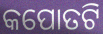
କପୋତଟି